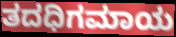
ತದಧಿಗಮಾಯ